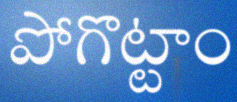
పోగొట్టాం